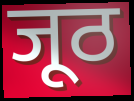
जूठ